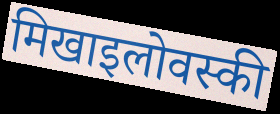
मिखाइलोवस्की